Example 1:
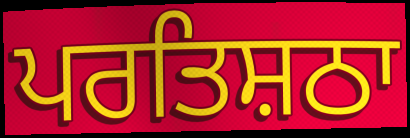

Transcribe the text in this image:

ਪਰਤਿਸ਼ਠਾ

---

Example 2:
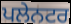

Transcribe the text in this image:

ਪਲੇਨਟਰ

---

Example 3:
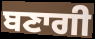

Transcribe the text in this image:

ਬਣਾਗੀ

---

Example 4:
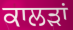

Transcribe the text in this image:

ਕਾਲੜਾਂ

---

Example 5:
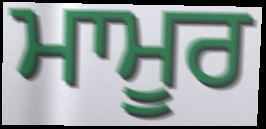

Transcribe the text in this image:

ਮਾਮੂਰ